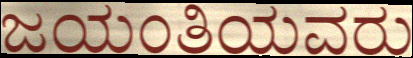
ಜಯಂತಿಯವರು